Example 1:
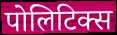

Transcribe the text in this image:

पोलिटिक्स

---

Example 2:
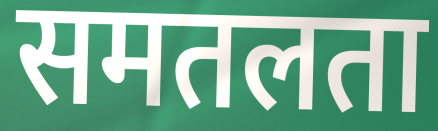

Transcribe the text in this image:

समतलता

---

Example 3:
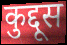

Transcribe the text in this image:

कुद्दूस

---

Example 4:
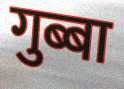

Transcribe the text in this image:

गुब्बा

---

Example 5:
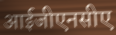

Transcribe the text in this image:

आईजीएनसीए